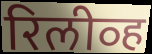
रिलीव्ह